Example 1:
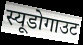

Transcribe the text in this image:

स्यूडोगाउट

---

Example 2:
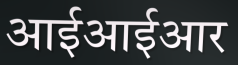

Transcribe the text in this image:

आईआईआर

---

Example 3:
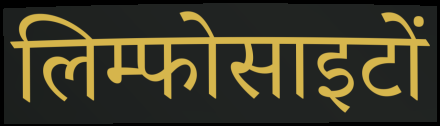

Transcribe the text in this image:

लिम्फोसाइटों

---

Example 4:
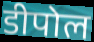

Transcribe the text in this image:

डीपोल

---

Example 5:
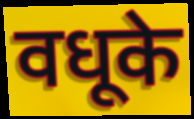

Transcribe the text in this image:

वधूके